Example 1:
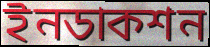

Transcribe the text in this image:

ইনডাকশন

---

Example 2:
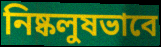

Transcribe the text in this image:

নিষ্কলুষভাবে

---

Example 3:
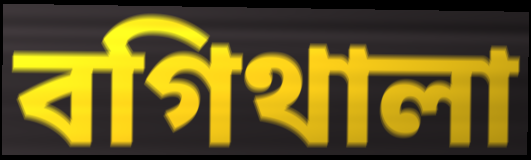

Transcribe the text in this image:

বগিথালা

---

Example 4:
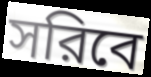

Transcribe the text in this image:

সরিবে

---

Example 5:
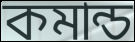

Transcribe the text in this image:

কমান্ড